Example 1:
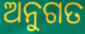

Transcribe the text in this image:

ଅନୁଗତ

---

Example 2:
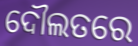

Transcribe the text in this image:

ଦୌଲତରେ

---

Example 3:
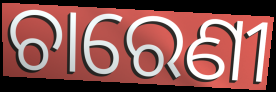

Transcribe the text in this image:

ଚାରେଣୀ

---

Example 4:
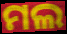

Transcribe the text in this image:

ମଲ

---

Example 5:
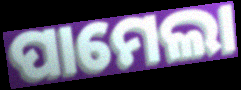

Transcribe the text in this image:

ପାମେଲା